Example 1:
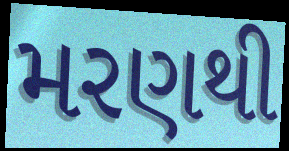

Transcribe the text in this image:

મરણથી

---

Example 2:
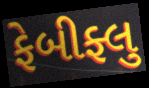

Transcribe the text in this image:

ફેબીફ્લુ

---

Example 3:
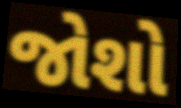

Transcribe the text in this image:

જોશો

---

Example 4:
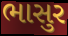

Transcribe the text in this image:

ભાસુર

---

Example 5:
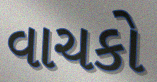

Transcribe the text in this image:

વાચકો